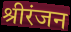
श्रीरंजन